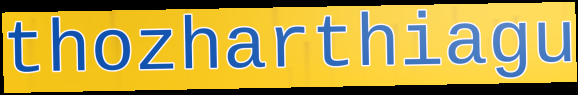
thozharthiagu